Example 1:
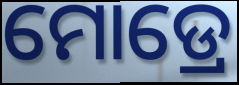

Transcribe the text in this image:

ମୋଡ୍ରେ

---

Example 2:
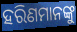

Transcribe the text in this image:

ହରିଣମାନଙ୍କୁ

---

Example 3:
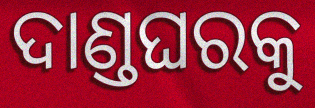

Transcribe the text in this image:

ଦାଣ୍ଡଘରକୁ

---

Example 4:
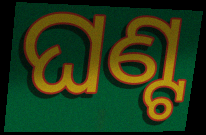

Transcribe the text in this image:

ଘଣ୍ଟ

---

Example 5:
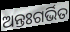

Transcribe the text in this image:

ଅନ୍ତଃଗର୍ଭିତ